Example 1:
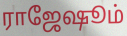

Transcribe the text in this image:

ராஜேஷூம்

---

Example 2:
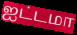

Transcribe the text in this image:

ஐட்டமா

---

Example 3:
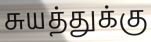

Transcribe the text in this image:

சுயத்துக்கு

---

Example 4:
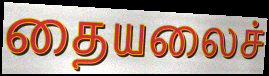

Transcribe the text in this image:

தையலைச்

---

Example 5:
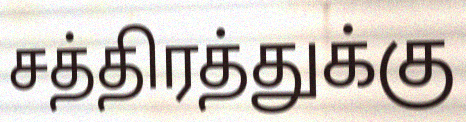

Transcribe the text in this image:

சத்திரத்துக்கு